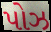
પોઝ